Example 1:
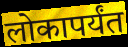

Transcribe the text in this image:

लोकापर्यंत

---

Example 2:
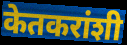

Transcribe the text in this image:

केतकरांशी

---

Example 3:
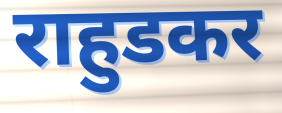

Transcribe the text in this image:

राहुडकर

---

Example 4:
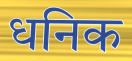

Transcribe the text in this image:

धनिक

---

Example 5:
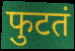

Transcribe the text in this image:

फुटतं